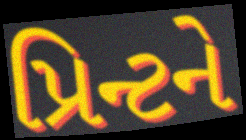
પ્રિન્ટને